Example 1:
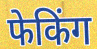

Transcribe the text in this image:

फेकिंग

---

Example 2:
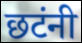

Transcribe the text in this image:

छटंनी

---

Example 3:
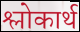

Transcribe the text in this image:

श्लोकार्थ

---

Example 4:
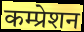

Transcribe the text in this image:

कम्प्रेशन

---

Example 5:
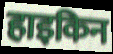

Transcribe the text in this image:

हाइकिन